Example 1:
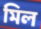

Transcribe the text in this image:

মিল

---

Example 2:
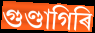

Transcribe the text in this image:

গুণ্ডাগিৰি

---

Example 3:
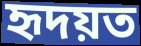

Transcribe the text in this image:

হৃদয়ত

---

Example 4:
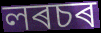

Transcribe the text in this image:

লৰচৰ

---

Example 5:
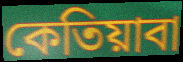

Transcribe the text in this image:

কেতিয়াবা